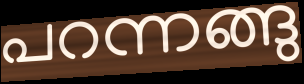
പറന്നങ്ങു